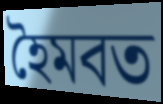
হৈমবত